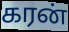
கரன்